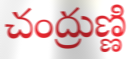
చంద్రుణ్ణి